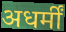
अधर्मीं